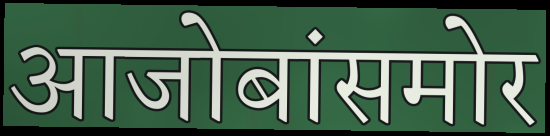
आजोबांसमोर